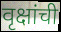
वृक्षांची